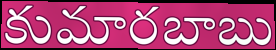
కుమారబాబు